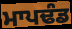
ਮਾਪਢੰਡ